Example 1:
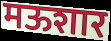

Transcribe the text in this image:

मऊशार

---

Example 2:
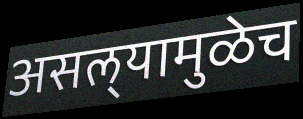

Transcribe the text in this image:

असल्यामुळेच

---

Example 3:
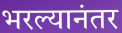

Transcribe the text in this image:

भरल्यानंतर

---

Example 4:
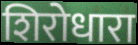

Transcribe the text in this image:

शिरोधारा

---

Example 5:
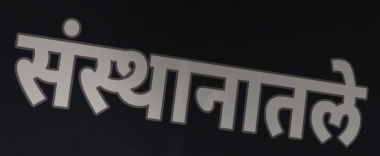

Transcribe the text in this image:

संस्थानातले